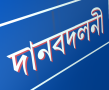
দানবদলনী